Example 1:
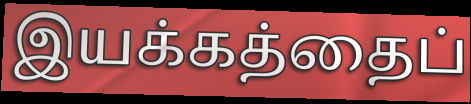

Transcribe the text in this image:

இயக்கத்தைப்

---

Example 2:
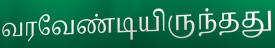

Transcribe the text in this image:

வரவேண்டியிருந்தது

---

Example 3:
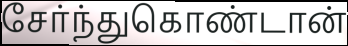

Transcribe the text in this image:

சேர்ந்துகொண்டான்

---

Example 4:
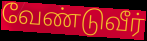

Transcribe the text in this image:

வேண்டுவீர்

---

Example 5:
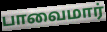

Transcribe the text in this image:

பாவைமார்